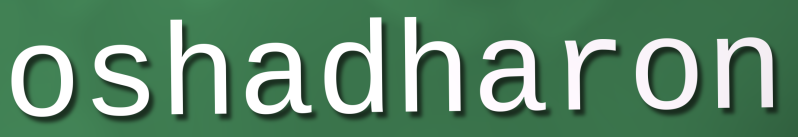
oshadharon